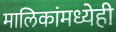
मालिकांमध्येही